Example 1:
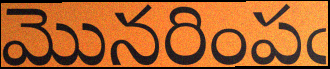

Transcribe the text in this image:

మొనరింపఁ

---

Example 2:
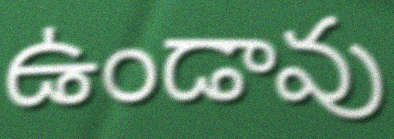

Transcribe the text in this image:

ఉండావు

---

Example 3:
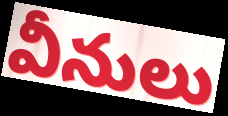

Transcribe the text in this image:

వీనులు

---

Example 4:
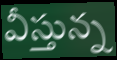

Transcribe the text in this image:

వీస్తున్న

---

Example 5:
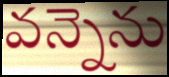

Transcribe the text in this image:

వన్నెను